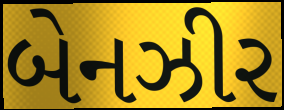
બેનઝીર